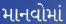
માનવોમાં